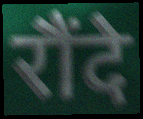
रौंदे